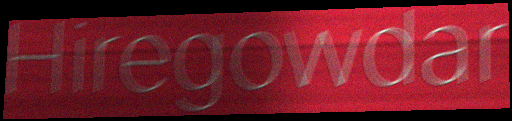
Hiregowdar